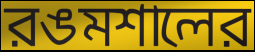
রঙমশালের